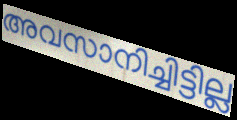
അവസാനിച്ചിട്ടില്ല